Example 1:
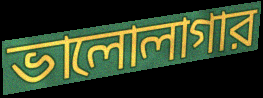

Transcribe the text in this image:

ভালোলাগার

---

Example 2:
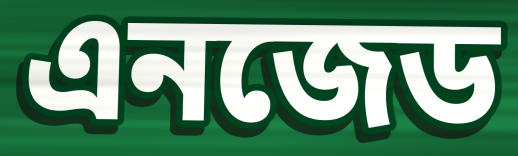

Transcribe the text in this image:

এনজেড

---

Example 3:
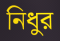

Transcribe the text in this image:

নিধুর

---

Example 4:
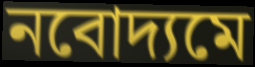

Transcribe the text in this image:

নবোদ্যমে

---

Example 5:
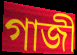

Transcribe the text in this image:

গাজী